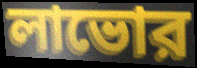
লাভোর